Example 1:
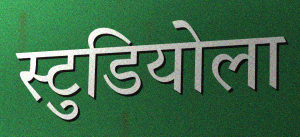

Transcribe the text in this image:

स्टुडियोला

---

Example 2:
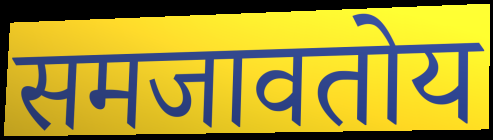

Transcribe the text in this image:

समजावतोय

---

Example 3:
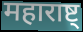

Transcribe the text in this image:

महाराष्ट्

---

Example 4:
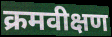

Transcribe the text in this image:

क्रमवीक्षण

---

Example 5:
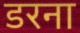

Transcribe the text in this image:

डरना